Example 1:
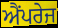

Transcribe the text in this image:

ਐਂਪਰੇਜ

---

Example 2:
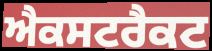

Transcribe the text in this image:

ਐਕਸਟਰੈਕਟ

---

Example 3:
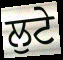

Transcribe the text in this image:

ਲੁਟੇ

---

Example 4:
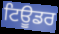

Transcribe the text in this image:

ਟਿਊਡਰ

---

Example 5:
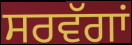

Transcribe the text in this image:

ਸਰਵੱਗਾਂ